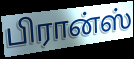
பிரான்ஸ்